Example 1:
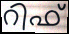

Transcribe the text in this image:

റിഫ്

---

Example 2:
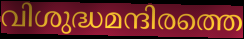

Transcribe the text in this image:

വിശുദ്ധമന്ദിരത്തെ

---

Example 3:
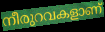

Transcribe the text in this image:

നീരുറവകളാണ്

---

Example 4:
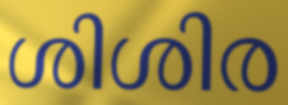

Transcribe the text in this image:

ശിശിര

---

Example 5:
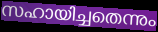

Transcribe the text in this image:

സഹായിച്ചതെന്നും